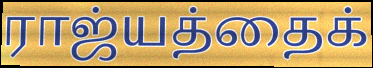
ராஜ்யத்தைக்